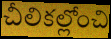
చీలికల్లోంచి